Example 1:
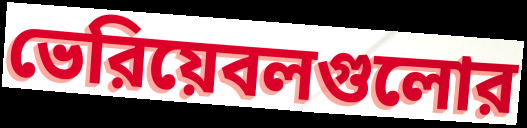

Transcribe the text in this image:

ভেরিয়েবলগুলোর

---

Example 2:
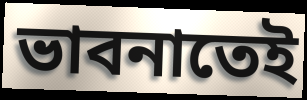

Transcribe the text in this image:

ভাবনাতেই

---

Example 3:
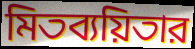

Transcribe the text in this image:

মিতব্যয়িতার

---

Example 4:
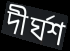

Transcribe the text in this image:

দীর্ঘশ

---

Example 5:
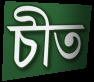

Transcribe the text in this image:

চীত